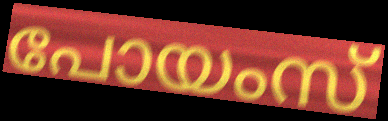
പോയംസ്